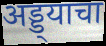
अड्ड्याचा